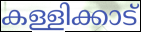
കള്ളിക്കാട്